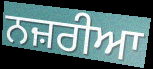
ਨਜ਼ਰੀਆ